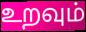
உறவும்